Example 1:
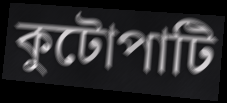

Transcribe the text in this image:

কুটোপাটি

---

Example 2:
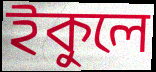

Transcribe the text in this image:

ইকুলে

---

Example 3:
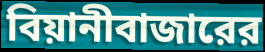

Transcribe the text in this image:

বিয়ানীবাজারের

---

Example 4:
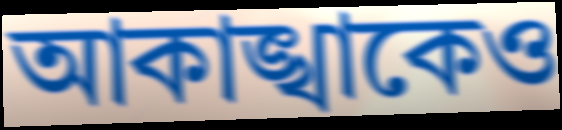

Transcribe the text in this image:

আকাঙ্খাকেও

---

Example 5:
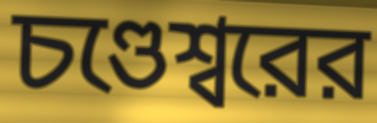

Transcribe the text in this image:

চণ্ডেশ্বরের